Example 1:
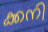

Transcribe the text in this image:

ക്കനി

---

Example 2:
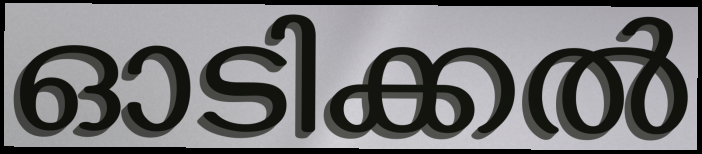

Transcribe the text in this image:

ഓടിക്കൽ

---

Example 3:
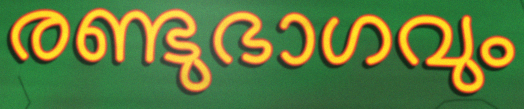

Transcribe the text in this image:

രണ്ടുഭാഗവും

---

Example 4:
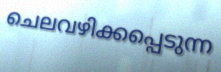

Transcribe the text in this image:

ചെലവഴിക്കപ്പെടുന്ന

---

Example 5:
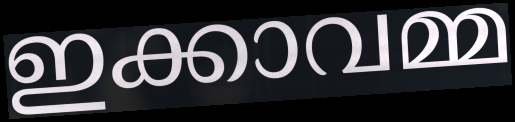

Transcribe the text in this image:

ഇക്കാവമ്മ